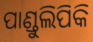
ପାଣ୍ଡୁଲିପିକି